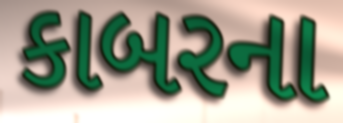
કાબરના